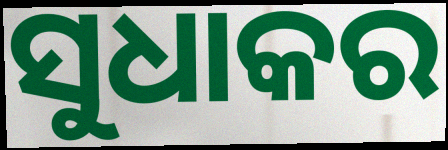
ସୁଧାକର